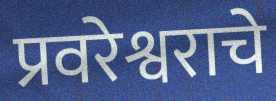
प्रवरेश्वराचे